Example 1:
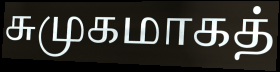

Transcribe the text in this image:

சுமுகமாகத்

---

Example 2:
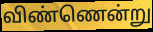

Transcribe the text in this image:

விண்ணென்று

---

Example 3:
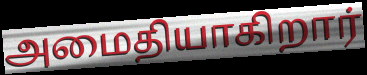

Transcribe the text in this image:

அமைதியாகிறார்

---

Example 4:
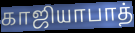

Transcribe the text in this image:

காஜியாபாத்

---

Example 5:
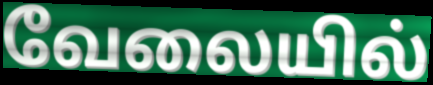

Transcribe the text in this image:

வேலையில்